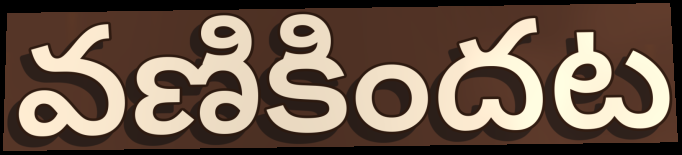
వణికిందట